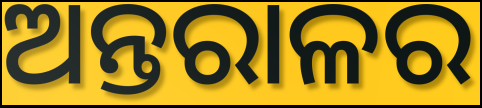
ଅନ୍ତରାଳର